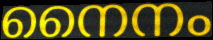
നൈനം